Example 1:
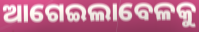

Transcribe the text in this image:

ଆଗେଇଲାବେଳକୁ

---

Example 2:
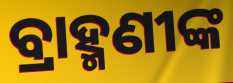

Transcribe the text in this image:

ବ୍ରାହ୍ମଣୀଙ୍କ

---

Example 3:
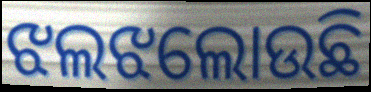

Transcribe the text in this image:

ଝଲଝଲୋଉଛି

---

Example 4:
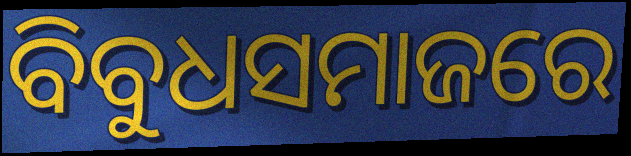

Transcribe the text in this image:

ବିବୁଧସମାଜରେ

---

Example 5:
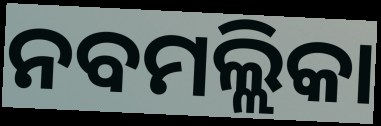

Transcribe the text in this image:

ନବମଲ୍ଲିକା